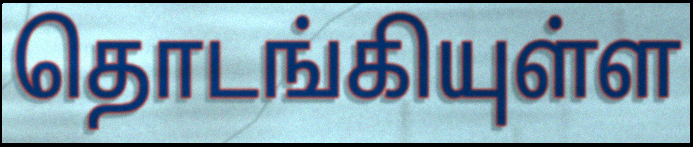
தொடங்கியுள்ள